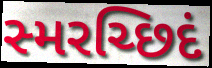
સ્મરચ્છિદં